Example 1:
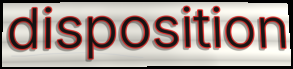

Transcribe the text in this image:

disposition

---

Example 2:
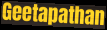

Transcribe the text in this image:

Geetapathan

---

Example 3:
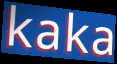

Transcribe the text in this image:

kaka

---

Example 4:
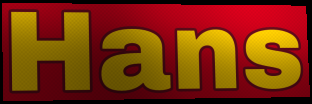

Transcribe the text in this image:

Hans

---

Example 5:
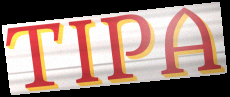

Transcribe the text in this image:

TIPA